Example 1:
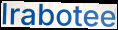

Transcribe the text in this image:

Irabotee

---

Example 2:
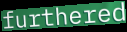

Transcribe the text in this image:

furthered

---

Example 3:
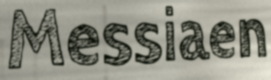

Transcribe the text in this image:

Messiaen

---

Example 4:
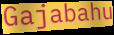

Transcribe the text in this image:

Gajabahu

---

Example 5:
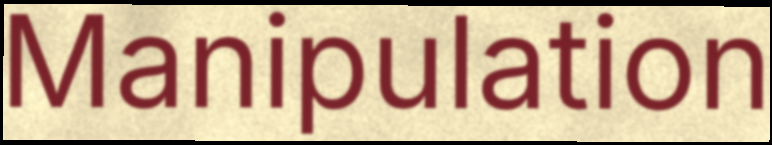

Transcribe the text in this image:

Manipulation